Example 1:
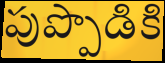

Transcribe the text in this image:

పుప్పొడికి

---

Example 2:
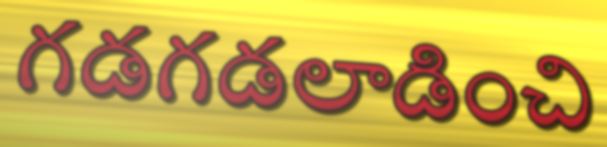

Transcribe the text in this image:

గడగడలాడించి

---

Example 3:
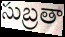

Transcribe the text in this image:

సుబ్రతా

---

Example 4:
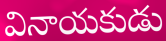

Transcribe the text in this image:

వినాయకుడు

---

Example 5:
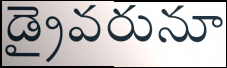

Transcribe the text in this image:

డ్రైవరునూ